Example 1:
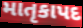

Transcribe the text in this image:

માતૃકાપદ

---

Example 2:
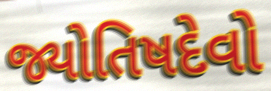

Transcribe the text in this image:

જ્યોતિષદેવો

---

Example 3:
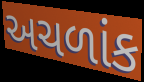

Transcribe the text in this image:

અચળાંક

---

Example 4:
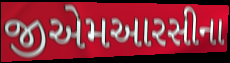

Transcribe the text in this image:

જીએમઆરસીના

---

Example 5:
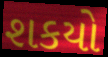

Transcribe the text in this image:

શકયો